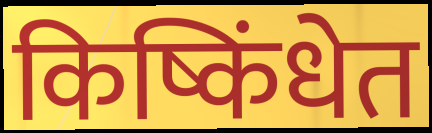
किष्किंधेत